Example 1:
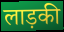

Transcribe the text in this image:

लाड़की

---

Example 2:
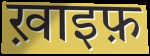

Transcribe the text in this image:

ख़ाइफ़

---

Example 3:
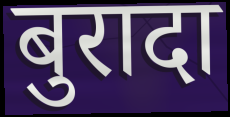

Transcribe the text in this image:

बुरादा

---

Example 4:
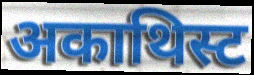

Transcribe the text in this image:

अकाथिस्ट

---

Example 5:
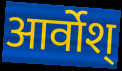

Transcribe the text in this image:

आर्वोश्